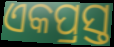
ଏକପ୍ରସ୍ତ